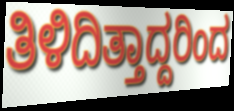
ತಿಳಿದಿತ್ತಾದ್ದರಿಂದ